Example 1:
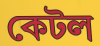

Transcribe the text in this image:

কেটল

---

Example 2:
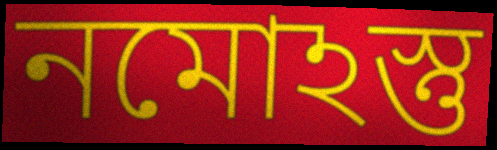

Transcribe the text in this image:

নমোঽস্তু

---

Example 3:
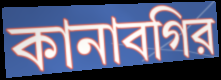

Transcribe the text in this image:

কানাবগির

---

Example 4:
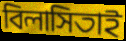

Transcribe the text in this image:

বিলাসিতাই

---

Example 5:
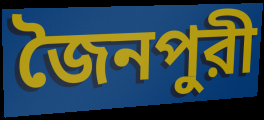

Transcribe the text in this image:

জৈনপুরী